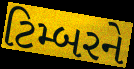
ટિમ્બરને